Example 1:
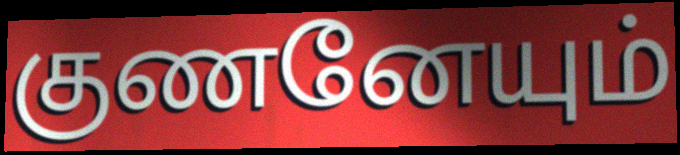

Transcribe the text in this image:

குணனேயும்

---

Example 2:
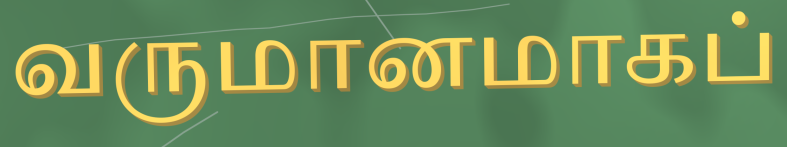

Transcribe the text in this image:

வருமானமாகப்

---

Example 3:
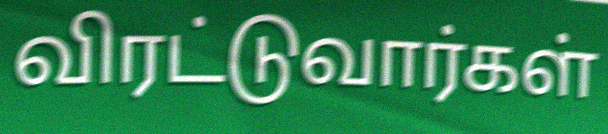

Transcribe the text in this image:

விரட்டுவார்கள்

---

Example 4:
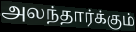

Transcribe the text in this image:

அலந்தார்க்கும்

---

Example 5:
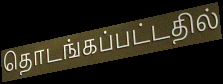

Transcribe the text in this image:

தொடங்கப்பட்டதில்